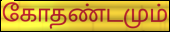
கோதண்டமும்